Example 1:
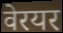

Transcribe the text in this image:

वेरयर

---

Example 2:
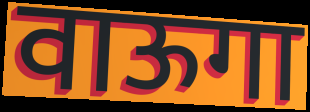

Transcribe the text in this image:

वाऊगा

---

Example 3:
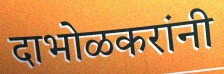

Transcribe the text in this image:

दाभोळकरांनी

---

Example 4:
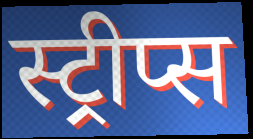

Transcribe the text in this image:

स्ट्रीप्स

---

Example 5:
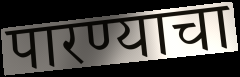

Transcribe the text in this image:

पारण्याचा